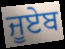
ਜੂਏਬ